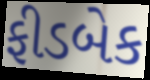
ફીડબેક